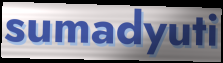
sumadyuti